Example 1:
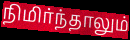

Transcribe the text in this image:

நிமிர்ந்தாலும்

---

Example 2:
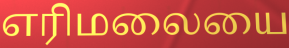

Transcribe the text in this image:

எரிமலையை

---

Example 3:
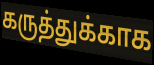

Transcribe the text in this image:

கருத்துக்காக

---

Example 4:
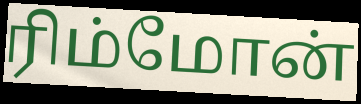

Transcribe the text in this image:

ரிம்மோன்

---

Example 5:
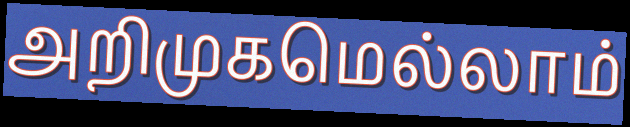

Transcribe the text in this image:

அறிமுகமெல்லாம்